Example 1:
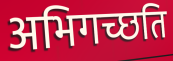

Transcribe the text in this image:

अभिगच्छति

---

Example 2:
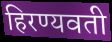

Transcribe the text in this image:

हिरण्यवती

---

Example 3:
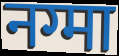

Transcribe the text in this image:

नग्मा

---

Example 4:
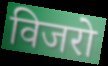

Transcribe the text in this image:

विजरो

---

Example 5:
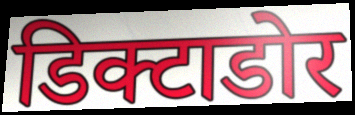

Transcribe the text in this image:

डिक्टाडोर